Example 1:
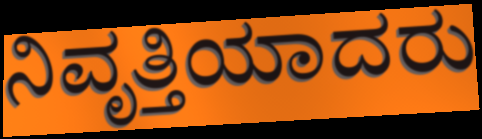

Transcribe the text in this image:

ನಿವೃತ್ತಿಯಾದರು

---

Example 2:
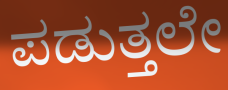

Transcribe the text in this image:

ಪಡುತ್ತಲೇ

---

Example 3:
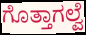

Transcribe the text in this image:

ಗೊತ್ತಾಗಲ್ವೆ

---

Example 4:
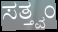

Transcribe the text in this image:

ಸತ್ತ್ವಂ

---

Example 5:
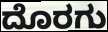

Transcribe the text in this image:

ದೊರಗು